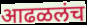
आढळलंच